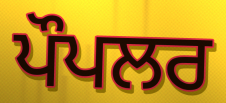
ਪੌਪਲਰ